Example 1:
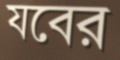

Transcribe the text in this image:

যবের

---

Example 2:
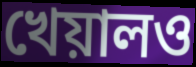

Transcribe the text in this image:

খেয়ালও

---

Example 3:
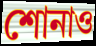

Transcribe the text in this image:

শোনাও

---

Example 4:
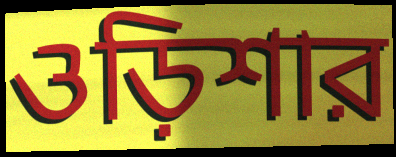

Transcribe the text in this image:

ওড়িশার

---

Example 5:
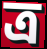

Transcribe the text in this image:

ত্র